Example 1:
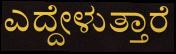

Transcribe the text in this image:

ಎದ್ದೇಳುತ್ತಾರೆ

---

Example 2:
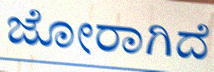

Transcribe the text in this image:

ಜೋರಾಗಿದೆ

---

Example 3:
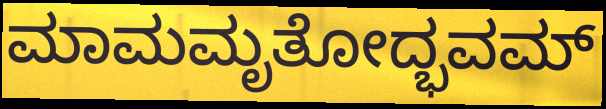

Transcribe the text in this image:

ಮಾಮಮೃತೋದ್ಭವಮ್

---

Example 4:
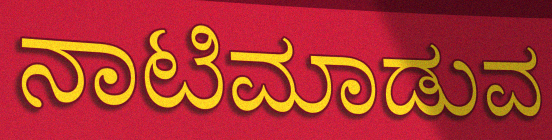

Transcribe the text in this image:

ನಾಟಿಮಾಡುವ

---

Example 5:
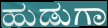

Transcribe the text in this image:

ಹುಡುಗಾ